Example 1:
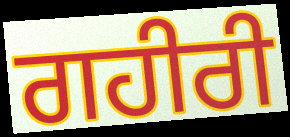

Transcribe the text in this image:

ਗਹੀਰੀ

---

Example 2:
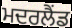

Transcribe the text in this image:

ਮਦਰਲੈਂਡ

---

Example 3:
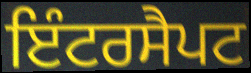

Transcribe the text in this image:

ਇੰਟਰਸੈਪਟ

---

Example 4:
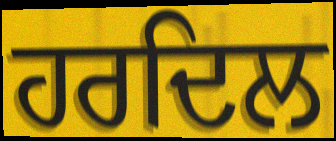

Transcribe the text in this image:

ਹਰਦਿਲ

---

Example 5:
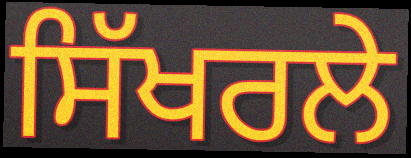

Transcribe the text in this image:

ਸਿੱਖਰਲੇ